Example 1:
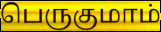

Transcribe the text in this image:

பெருகுமாம்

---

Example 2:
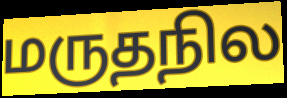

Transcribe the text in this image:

மருதநில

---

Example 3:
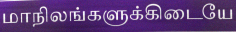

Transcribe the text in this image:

மாநிலங்களுக்கிடையே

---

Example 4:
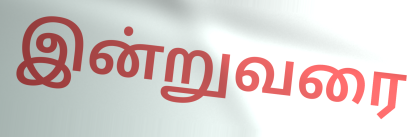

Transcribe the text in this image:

இன்றுவரை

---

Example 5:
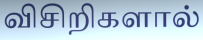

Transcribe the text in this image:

விசிறிகளால்